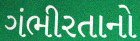
ગંભીરતાનો